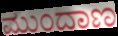
ಮುಂದಾಣ